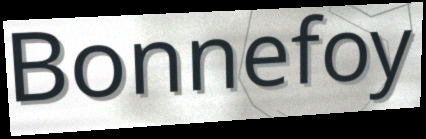
Bonnefoy